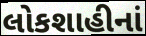
લોકશાહીનાં